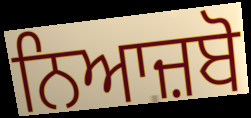
ਨਿਆਜ਼ਬੋ